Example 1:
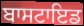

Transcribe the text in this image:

ਬਾਸਟਾਇਡ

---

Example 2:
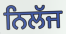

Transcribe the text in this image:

ਨਿਲੱਜ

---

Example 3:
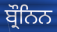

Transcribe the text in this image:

ਬ੍ਰੌਨਿਨ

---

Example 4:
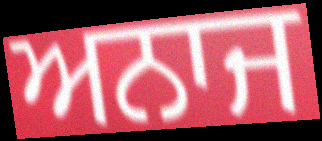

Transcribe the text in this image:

ਅਨਾਜ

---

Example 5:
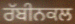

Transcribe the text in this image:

ਰੱਬੀਨਕਲ